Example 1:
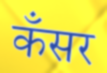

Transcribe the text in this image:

कँसर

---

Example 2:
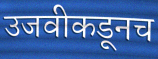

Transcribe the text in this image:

उजवीकडूनच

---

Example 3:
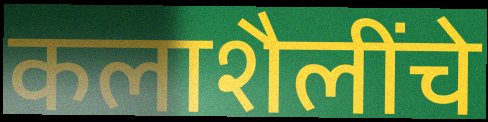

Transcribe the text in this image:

कलाशैलींचे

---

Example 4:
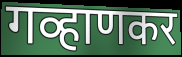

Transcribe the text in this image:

गव्हाणकर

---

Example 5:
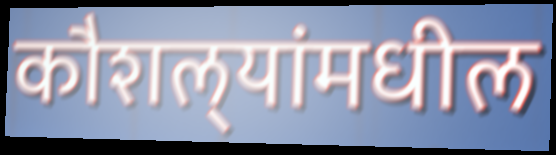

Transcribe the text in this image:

कौशल्यांमधील